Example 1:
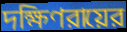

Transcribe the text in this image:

দক্ষিণরায়ের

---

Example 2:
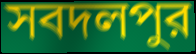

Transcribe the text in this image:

সবদলপুর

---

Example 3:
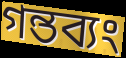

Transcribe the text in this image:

গন্তব্যং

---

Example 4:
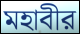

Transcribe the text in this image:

মহাবীর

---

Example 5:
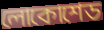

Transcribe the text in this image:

লোকোশেড